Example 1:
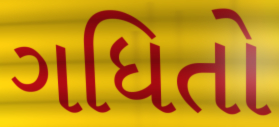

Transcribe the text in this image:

ગધિતો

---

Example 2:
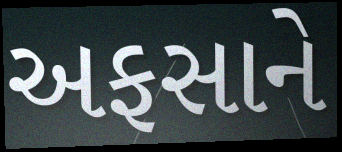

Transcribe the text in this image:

અફસાને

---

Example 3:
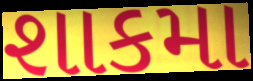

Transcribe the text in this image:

શાકમા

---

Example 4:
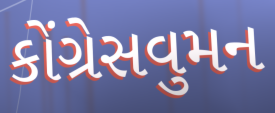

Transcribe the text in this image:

કોંગ્રેસવુમન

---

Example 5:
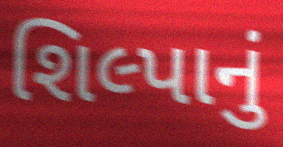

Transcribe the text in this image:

શિલ્પાનું